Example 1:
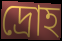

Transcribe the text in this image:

দ্রোহ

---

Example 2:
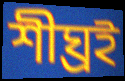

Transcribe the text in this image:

শীঘ্রই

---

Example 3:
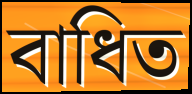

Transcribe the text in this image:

বাধিত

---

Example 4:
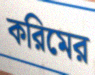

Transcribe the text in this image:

করিমের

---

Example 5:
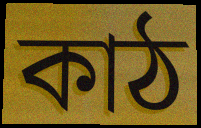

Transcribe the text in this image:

কাঠ